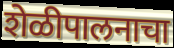
शेळीपालनाचा